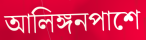
আলিঙ্গনপাশে